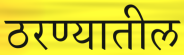
ठरण्यातील